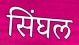
सिंघल